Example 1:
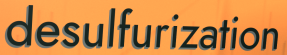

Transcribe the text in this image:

desulfurization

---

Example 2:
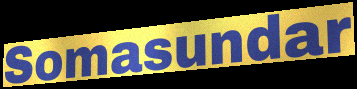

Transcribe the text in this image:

Somasundar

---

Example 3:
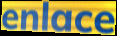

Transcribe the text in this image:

enlace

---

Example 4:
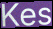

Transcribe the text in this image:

Kes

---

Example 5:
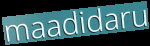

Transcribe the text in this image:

maadidaru